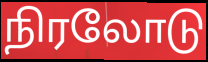
நிரலோடு